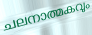
ചലനാത്മകവും